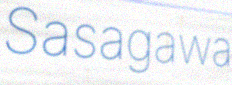
Sasagawa